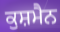
ਕੁਸ਼ਮੈਨ